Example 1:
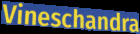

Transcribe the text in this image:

Vineschandra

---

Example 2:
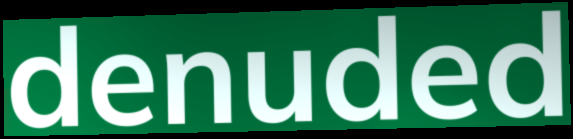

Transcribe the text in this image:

denuded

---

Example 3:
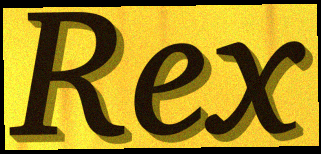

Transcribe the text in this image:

Rex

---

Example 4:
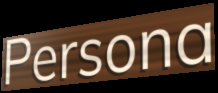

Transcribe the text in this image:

Persona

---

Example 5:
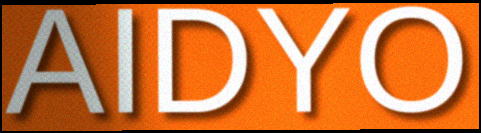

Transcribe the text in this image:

AIDYO